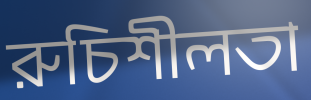
রুচিশীলতা